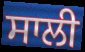
ਸਾਲੀ